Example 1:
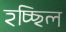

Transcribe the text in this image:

হচ্ছিল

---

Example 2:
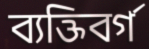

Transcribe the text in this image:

ব্যক্তিবর্গ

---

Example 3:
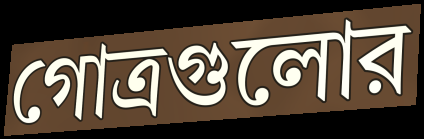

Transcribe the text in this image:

গোত্রগুলোর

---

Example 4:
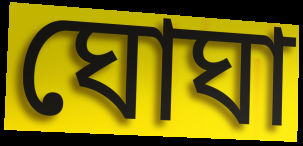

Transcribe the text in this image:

ঘোঘা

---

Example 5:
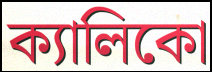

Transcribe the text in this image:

ক্যালিকো